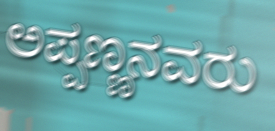
ಅಪ್ಪಣ್ಣನವರು